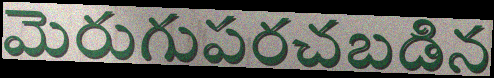
మెరుగుపరచబడిన